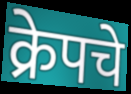
क्रेपचे